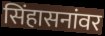
सिंहासनांवर